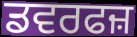
ਡਵਰਫਜ਼